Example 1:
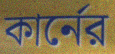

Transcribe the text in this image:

কার্নের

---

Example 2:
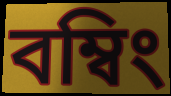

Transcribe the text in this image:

বম্বিং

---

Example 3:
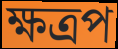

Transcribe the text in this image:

ক্ষত্রপ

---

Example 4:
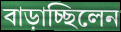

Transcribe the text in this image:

বাড়াচ্ছিলেন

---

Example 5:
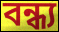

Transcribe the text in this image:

বন্ধ্য